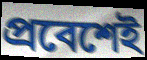
প্রবেশেই